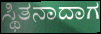
ಸ್ಥಿತನಾದಾಗ